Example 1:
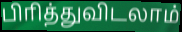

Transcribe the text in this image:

பிரித்துவிடலாம்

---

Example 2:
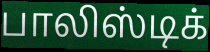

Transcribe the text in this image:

பாலிஸ்டிக்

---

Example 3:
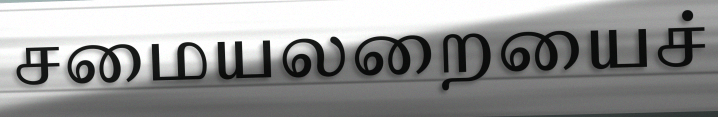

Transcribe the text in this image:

சமையலறையைச்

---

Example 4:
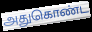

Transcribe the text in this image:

அதுகொண்ட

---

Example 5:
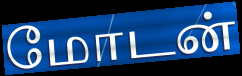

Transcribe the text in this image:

மோடன்